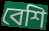
বেশি